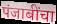
पंजाबींचा